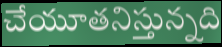
చేయూతనిస్తున్నది